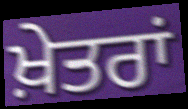
ਖ਼ੇਤਰਾਂ